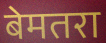
बेमतरा